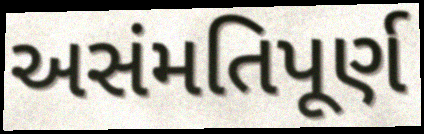
અસંમતિપૂર્ણ